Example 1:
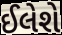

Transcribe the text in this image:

ઈલેશે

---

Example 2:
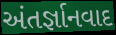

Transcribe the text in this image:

અંતર્જ્ઞાનવાદ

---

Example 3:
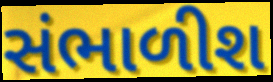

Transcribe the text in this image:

સંભાળીશ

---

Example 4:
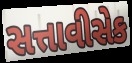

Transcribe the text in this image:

સત્તાવીસેક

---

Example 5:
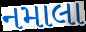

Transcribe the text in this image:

નમાલા